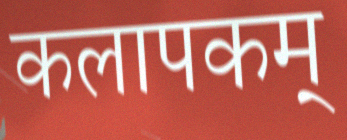
कलापकम्